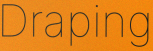
Draping